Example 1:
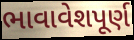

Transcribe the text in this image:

ભાવાવેશપૂર્ણ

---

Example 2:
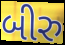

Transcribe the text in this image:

બીરુ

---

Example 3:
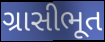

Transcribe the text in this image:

ગ્રાસીભૂત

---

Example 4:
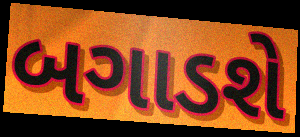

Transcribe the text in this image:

બગાડશે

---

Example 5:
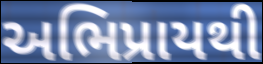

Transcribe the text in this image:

અભિપ્રાયથી